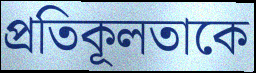
প্রতিকূলতাকে